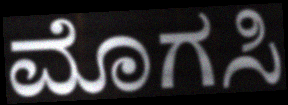
ಮೊಗಸಿ